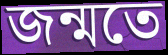
জন্মতে